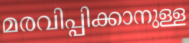
മരവിപ്പിക്കാനുള്ള